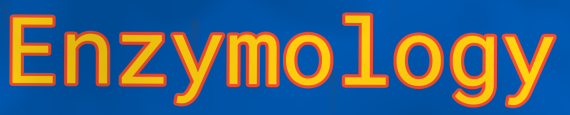
Enzymology